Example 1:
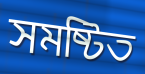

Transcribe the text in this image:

সমষ্টিত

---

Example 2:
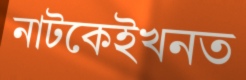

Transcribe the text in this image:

নাটকেইখনত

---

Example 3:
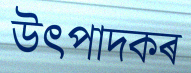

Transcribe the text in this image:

উৎপাদকৰ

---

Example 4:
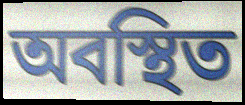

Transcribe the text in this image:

অবস্থিত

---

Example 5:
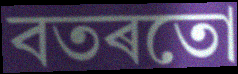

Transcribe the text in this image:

বতৰতো